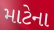
માટેના